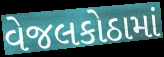
વેજલકોઠામાં